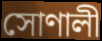
সোণালী